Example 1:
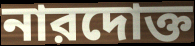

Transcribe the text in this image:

নারদোক্ত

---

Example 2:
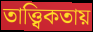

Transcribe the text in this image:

তাত্ত্বিকতায়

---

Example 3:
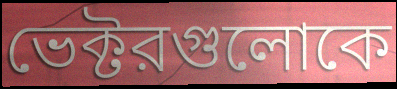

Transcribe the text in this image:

ভেক্টরগুলোকে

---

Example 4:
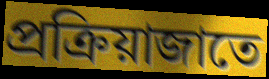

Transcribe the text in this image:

প্রক্রিয়াজাতে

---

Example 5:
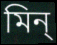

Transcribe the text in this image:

মিন্